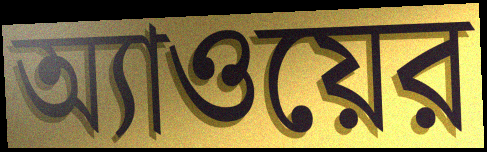
অ্যাওয়ের